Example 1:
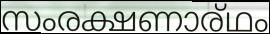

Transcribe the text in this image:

സംരക്ഷണാര്ഥം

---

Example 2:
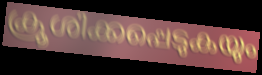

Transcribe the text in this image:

ക്രൂശിക്കപ്പെടുകയും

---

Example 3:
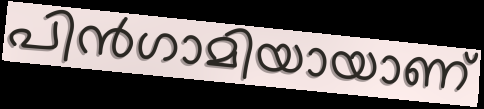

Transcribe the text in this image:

പിൻഗാമിയായാണ്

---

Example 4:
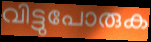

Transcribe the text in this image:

വിട്ടുപോരുക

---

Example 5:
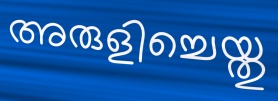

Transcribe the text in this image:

അരുളിച്ചെയ്തു